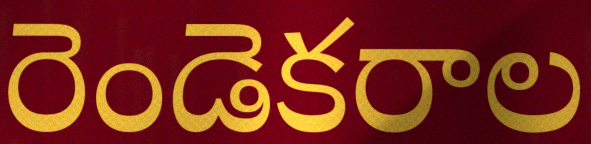
రెండెకరాల